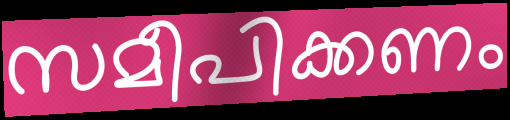
സമീപിക്കണം